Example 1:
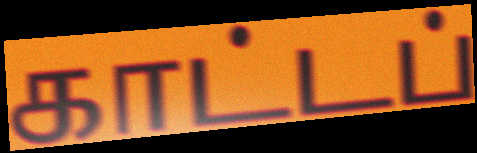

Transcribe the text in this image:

காட்டப்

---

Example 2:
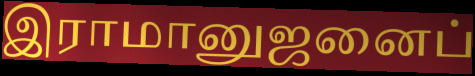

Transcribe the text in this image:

இராமானுஜனைப்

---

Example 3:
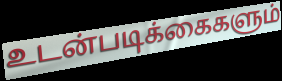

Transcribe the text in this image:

உடன்படிக்கைகளும்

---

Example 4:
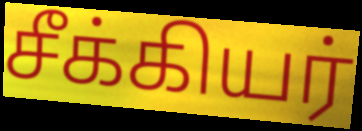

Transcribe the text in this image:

சீக்கியர்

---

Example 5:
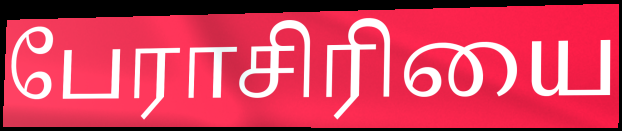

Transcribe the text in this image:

பேராசிரியை